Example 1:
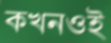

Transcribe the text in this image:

কখনওই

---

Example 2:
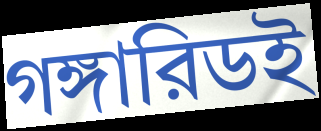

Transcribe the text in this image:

গঙ্গারিডই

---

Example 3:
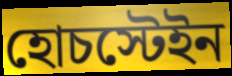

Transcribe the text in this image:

হোচস্টেইন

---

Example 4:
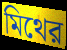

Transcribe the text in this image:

মিথের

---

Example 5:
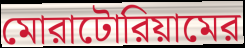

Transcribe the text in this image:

মোরাটোরিয়ামের